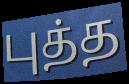
புத்த